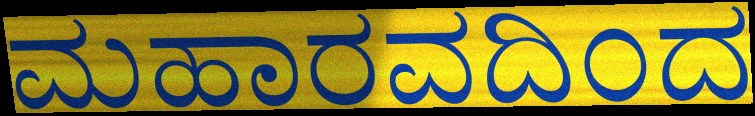
ಮಹಾರವದಿಂದ